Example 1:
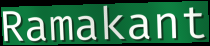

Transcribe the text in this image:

Ramakant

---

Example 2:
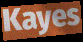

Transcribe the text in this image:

Kayes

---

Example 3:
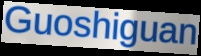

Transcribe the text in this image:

Guoshiguan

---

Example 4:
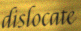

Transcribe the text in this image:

dislocate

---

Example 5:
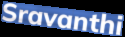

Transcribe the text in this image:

Sravanthi